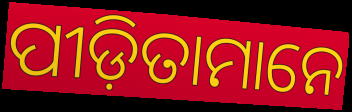
ପୀଡ଼ିତାମାନେ